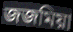
জজমিয়া